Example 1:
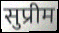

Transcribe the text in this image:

सुप्रीम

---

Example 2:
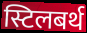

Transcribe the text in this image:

स्टिलबर्थ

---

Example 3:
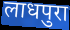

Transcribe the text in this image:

लाधपुरा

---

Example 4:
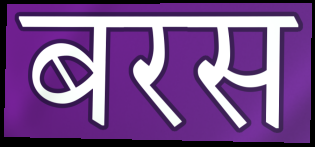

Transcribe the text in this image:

बरस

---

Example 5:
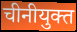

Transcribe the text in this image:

चीनीयुक्त